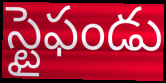
స్టైఫండు